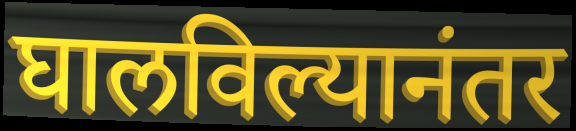
घालविल्यानंतर